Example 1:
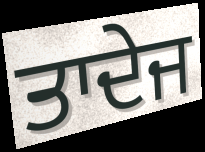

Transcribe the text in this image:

ਤਾਦੇਜ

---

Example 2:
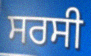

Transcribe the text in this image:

ਸਰਸੀ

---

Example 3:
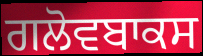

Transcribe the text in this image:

ਗਲੋਵਬਾਕਸ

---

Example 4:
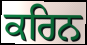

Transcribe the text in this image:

ਕਰਿਨ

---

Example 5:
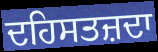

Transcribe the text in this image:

ਦਹਿਸਤਜ਼ਦਾ